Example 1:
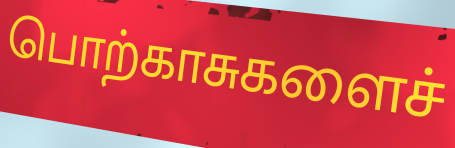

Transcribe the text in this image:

பொற்காசுகளைச்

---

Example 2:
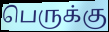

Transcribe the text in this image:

பெருக்கு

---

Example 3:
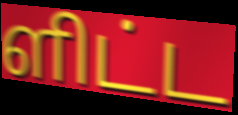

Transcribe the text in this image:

ளிட்ட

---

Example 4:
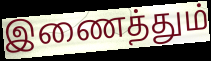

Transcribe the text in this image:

இணைத்தும்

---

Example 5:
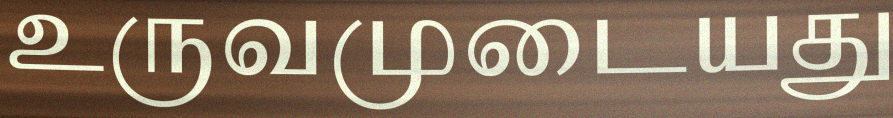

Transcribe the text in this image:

உருவமுடையது